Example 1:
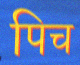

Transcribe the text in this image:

पिच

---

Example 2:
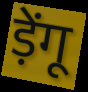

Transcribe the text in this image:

ड़ेंगू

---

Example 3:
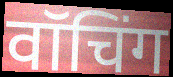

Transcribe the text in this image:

वॉचिंग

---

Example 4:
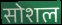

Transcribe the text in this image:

सोशल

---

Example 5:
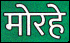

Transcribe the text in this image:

मोरहे